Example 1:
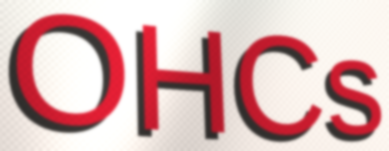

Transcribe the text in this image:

OHCs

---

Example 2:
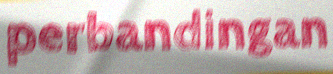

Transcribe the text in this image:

perbandingan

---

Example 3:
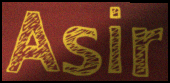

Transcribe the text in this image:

Asir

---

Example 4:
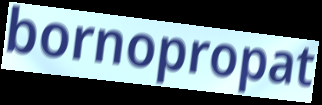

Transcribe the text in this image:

bornopropat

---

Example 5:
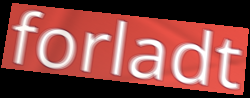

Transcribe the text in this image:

forladt